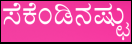
ಸೆಕೆಂಡಿನಷ್ಟು